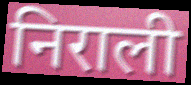
निराली